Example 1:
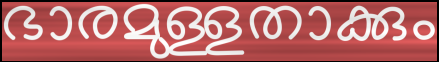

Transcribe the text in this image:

ഭാരമുള്ളതാക്കും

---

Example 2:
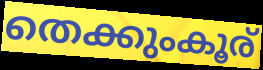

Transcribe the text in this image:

തെക്കുംകൂര്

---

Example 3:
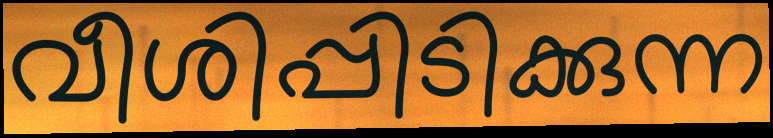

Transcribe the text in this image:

വീശിപ്പിടിക്കുന്ന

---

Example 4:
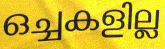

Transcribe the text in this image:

ഒച്ചകളില്ല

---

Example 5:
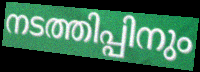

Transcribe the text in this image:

നടത്തിപ്പിനും